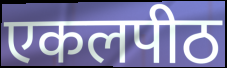
एकलपीठ